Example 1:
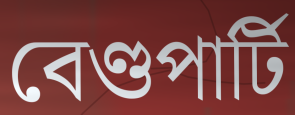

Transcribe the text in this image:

বেণ্ডপাৰ্টি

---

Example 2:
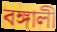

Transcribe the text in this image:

বঙ্গালী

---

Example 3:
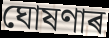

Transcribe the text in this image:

ঘোষণাৰ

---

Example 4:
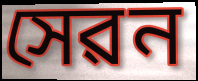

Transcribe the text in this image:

সেৱন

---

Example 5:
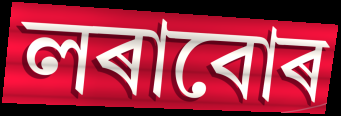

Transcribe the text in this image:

লৰাবোৰ